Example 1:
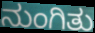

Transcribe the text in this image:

ನುಂಗಿತು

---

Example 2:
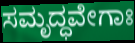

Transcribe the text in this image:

ಸಮೃದ್ಧವೇಗಾಃ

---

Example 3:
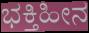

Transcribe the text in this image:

ಭಕ್ತಿಹೀನ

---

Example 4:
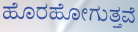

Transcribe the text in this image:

ಹೊರಹೋಗುತ್ತವೆ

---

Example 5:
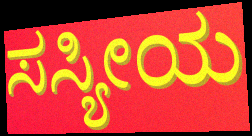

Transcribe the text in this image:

ಸಸ್ಯೀಯ